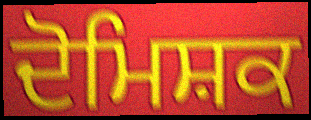
ਦੋਮਿਸ਼ਕ